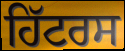
ਹਿੱਟਰਸ